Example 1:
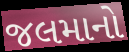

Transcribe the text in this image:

જલમાનો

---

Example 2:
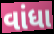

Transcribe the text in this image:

વાંધા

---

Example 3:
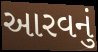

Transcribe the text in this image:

આરવનું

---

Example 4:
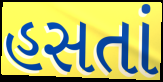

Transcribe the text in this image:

હસતાં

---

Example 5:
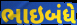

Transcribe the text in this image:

ભાઇબંધે